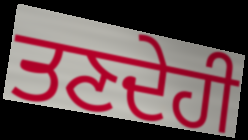
ਤਣਦੇਹੀ